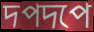
দপদপে